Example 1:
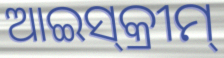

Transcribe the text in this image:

ଆଇସ୍‌କ୍ରୀମ୍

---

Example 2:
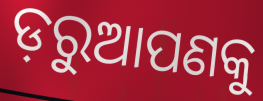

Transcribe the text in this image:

ଡ଼ରୁଆପଣକୁ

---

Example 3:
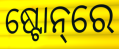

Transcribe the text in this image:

ଷ୍ଟୋନ୍‌ରେ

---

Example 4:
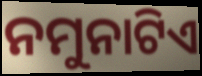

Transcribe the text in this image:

ନମୁନାଟିଏ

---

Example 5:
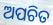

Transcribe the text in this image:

ଅପଚିତ